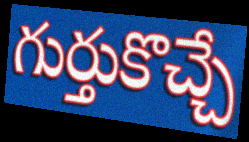
గుర్తుకొచ్చే